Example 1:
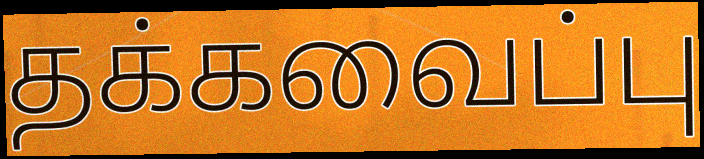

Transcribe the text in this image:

தக்கவைப்பு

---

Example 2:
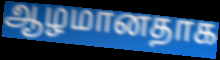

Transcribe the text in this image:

ஆழமானதாக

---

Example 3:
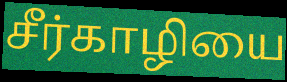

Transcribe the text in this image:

சீர்காழியை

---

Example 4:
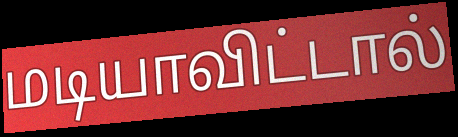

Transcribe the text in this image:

மடியாவிட்டால்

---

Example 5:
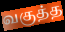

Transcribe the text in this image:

வகுத்த